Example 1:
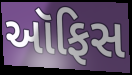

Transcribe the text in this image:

આૅફિસ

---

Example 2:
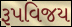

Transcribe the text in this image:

રૂપવિજય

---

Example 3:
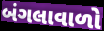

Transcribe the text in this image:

બંગલાવાળો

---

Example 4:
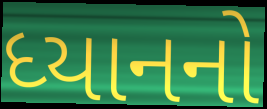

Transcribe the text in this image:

ધ્યાનનો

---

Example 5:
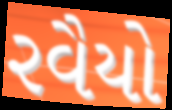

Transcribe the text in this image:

રવૈયો